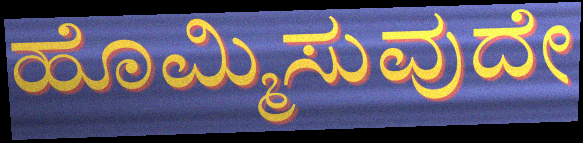
ಹೊಮ್ಮಿಸುವುದೇ